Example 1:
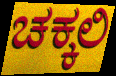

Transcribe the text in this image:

ಚಕ್ಕಲಿ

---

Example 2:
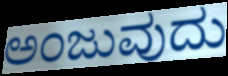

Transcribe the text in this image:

ಅಂಜುವುದು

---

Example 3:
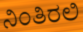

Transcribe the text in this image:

ನಿಂತಿರಲಿ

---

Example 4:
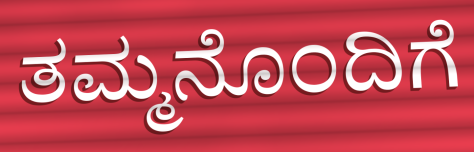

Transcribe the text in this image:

ತಮ್ಮನೊಂದಿಗೆ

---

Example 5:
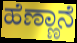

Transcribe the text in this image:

ಹೆಣ್ಣಾನೆ